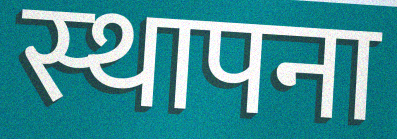
स्‍थापना